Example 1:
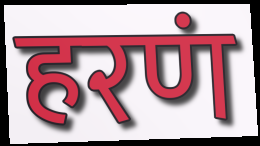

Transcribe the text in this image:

हरणं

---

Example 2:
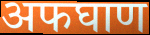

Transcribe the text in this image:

अफघाण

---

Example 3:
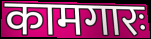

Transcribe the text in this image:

कामगारः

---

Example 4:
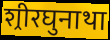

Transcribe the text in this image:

श्रीरघुनाथा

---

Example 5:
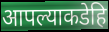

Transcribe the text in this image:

आपल्याकडेहि